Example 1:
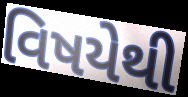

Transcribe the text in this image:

વિષયેથી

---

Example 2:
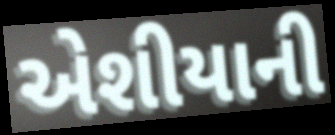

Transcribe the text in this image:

એશીયાની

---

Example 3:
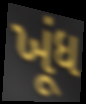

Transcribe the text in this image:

ખૂંધ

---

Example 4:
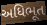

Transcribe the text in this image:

અધિભૂત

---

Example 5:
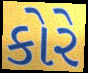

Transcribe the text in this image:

કોરે